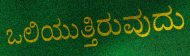
ಒಲಿಯುತ್ತಿರುವುದು